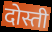
दोस्ती